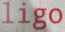
ligo